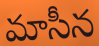
మాసీన